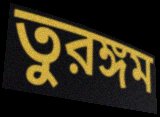
তুরঙ্গম